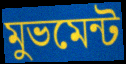
মুভমেন্ট